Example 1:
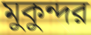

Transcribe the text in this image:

মুকুন্দর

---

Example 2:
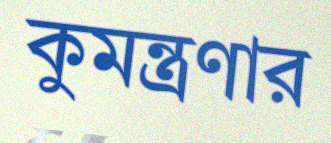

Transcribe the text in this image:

কুমন্ত্রণার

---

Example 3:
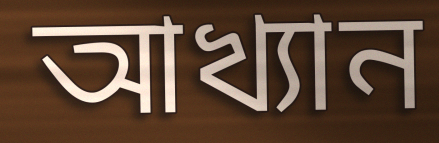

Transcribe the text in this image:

আখ্যান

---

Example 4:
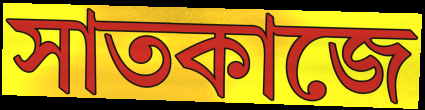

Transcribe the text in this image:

সাতকাজে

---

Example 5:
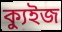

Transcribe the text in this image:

ক্যুইজ